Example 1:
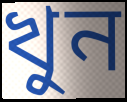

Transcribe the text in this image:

খুন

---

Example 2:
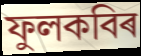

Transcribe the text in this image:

ফুলকবিৰ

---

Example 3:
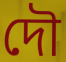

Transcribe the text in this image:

দৌ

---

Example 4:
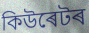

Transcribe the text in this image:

কিউৰেটৰ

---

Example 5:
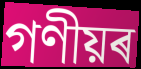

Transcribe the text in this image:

গণীয়ৰ